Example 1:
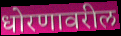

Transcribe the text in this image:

धोरणावरील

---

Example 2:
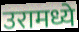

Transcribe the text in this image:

उरामध्ये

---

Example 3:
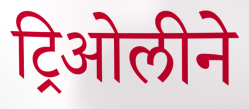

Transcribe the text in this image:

ट्रिओलीने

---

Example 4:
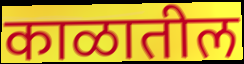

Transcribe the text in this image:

काळातील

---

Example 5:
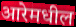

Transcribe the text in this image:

आरेमधील